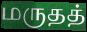
மருதத்